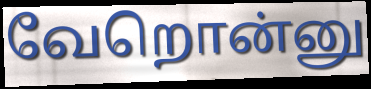
வேறொன்னு